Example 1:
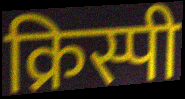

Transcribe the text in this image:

क्रिस्पी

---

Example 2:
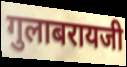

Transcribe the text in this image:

गुलाबरायजी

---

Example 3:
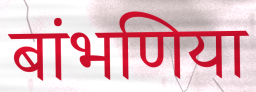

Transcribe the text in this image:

बांभणिया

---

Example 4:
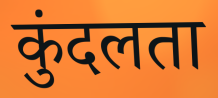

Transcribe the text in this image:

कुंदलता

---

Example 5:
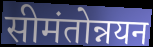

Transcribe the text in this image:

सीमंतोन्नयन